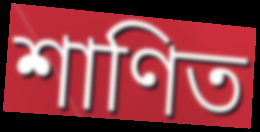
শাণিত